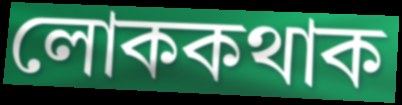
লোককথাক